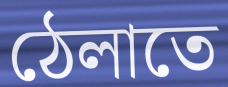
ঠেলাতে